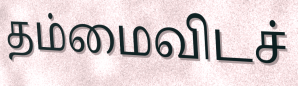
தம்மைவிடச்